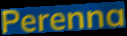
Perenna